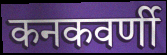
कनकवर्णी